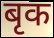
बृक